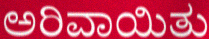
ಅರಿವಾಯಿತು